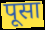
पूसा